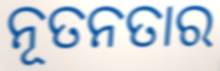
ନୂତନତାର